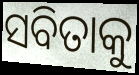
ସବିତାକୁ